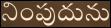
నింపుదును